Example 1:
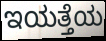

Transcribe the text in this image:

ಇಯತ್ತೆಯ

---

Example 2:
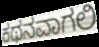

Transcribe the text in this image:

ಕಥನವಾಗಲಿ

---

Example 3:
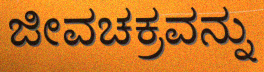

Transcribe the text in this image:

ಜೀವಚಕ್ರವನ್ನು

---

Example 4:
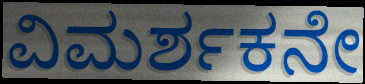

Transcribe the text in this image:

ವಿಮರ್ಶಕನೇ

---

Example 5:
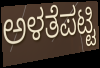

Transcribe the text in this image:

ಅಳತೆಪಟ್ಟಿ